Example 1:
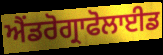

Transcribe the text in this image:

ਐਂਡਰੋਗ੍ਰਾਫੋਲਾਈਡ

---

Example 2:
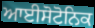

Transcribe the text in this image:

ਆਈਸੋਟੋਨਿਕ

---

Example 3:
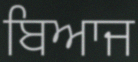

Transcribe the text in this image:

ਬਿਆਜ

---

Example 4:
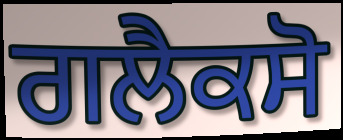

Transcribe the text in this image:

ਗਲੈਕਸੋ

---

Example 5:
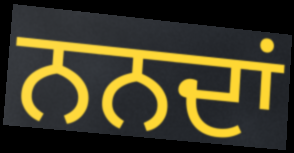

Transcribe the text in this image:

ਨਨਦਾਂ